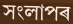
সংলাপৰ